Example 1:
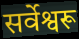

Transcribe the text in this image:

सर्वेश्वरू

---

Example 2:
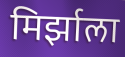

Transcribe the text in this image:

मिर्झाला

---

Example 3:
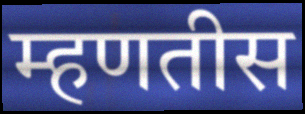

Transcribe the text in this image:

म्हणतीस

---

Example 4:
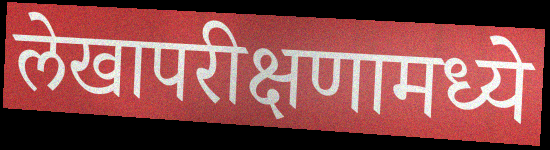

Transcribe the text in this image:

लेखापरीक्षणामध्ये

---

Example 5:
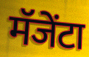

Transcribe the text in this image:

मॅजेंटा